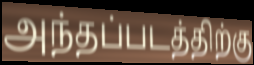
அந்தப்படத்திற்கு